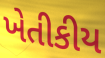
ખેતીકીય